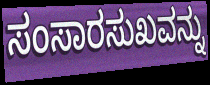
ಸಂಸಾರಸುಖವನ್ನು